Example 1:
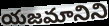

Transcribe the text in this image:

యజమానిని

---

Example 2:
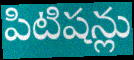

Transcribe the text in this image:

పిటిషన్లు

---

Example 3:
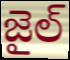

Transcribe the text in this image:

జైల్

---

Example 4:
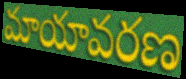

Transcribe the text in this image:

మాయావరణ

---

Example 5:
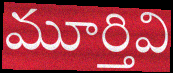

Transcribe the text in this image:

మూర్తివి